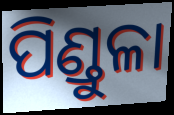
ପିଣ୍ଡୁଳା